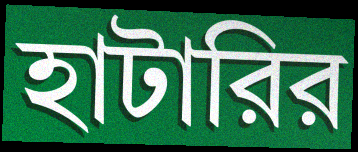
হাটারির